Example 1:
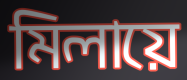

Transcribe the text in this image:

মিলায়ে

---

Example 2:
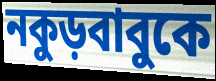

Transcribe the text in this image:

নকুড়বাবুকে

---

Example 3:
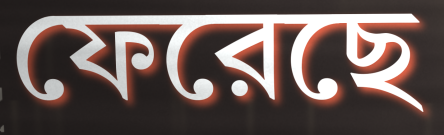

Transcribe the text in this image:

ফেরেছে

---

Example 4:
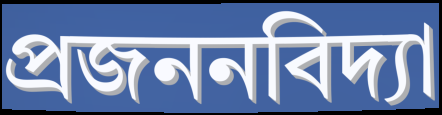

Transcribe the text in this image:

প্রজননবিদ্যা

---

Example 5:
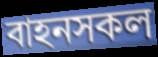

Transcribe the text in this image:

বাহনসকল